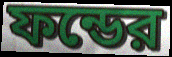
ফন্ডের